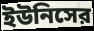
ইউনিসের